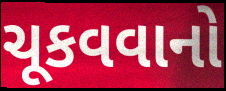
ચૂકવવાનો